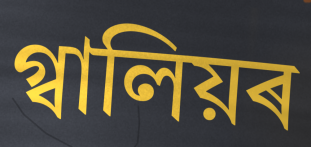
গ্বালিয়ৰ